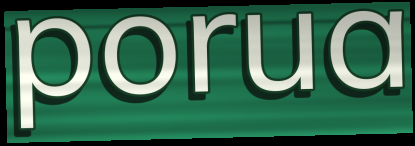
porua